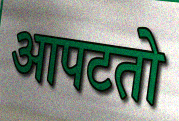
आपटतो